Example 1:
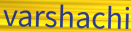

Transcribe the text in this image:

varshachi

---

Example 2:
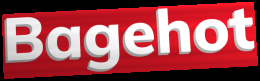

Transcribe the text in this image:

Bagehot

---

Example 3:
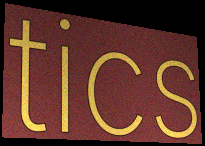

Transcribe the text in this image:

tics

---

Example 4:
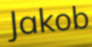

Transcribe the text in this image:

Jakob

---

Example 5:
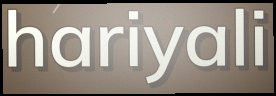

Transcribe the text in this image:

hariyali